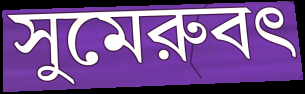
সুমেরুবৎ